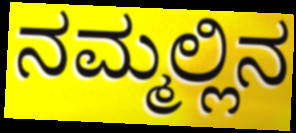
ನಮ್ಮಲ್ಲಿನ